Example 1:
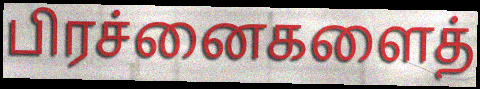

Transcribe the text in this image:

பிரச்னைகளைத்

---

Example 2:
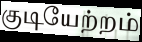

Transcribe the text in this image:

குடியேற்றம்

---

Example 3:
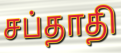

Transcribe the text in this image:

சப்தாதி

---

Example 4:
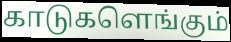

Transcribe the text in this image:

காடுகளெங்கும்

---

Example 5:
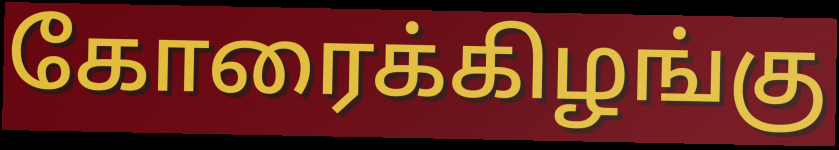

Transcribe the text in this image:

கோரைக்கிழங்கு